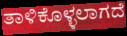
ತಾಳಿಕೊಳ್ಳಲಾಗದೆ